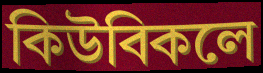
কিউবিকলে